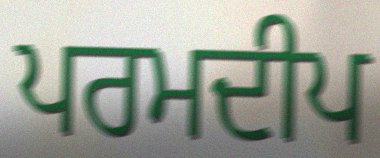
ਪਰਮਦੀਪ